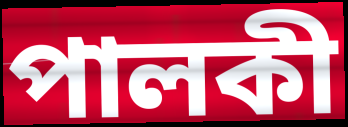
পালকী